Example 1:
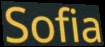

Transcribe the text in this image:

Sofia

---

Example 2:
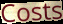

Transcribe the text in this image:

Costs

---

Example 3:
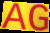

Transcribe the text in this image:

AG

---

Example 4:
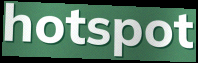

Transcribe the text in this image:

hotspot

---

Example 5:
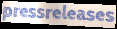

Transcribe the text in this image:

pressreleases